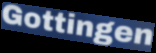
Gottingen